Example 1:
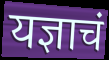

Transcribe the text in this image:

यज्ञाचं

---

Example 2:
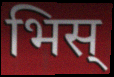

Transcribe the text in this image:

भिस्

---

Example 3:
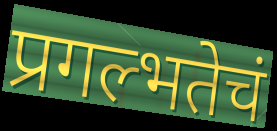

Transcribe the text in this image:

प्रगल्भतेचं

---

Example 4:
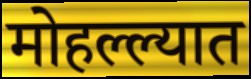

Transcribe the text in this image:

मोहल्ल्यात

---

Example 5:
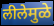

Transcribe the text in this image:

लीलेमुळे